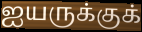
ஐயருக்குக்